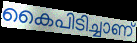
കൈപിടിച്ചാണ്